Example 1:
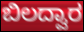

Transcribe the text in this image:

ಬಿಲದ್ವಾರ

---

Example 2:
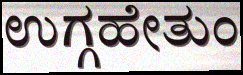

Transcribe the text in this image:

ಉಗ್ಗಹೇತುಂ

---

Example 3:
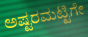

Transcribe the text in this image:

ಅಷ್ಟರಮಟ್ಟಿಗೇ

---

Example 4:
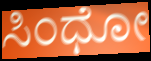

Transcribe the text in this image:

ಸಿಂಧೋ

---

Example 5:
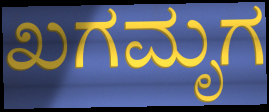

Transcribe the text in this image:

ಖಗಮೃಗ